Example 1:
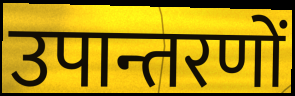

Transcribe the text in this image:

उपान्तरणों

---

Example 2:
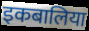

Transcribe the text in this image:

इकबालिया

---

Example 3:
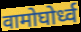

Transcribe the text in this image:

वामोघोर्ध्व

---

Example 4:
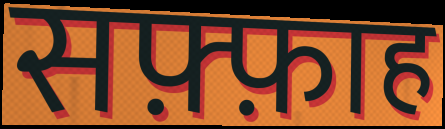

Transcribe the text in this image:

सफ़्फ़ाह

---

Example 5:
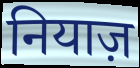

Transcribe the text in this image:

नियाज़